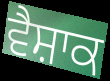
ਵੈਸ਼ਾਕ